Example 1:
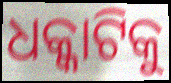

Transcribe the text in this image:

ଧକ୍କାଟିକୁ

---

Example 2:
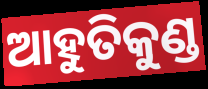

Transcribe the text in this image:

ଆହୁତିକୁଣ୍ଡ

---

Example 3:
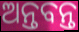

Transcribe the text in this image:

ଅନ୍ତବନ୍ତ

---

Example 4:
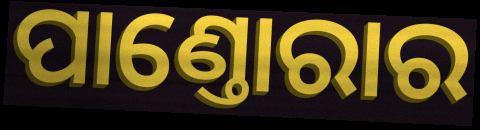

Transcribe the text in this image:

ପାଣ୍ତୋରାର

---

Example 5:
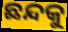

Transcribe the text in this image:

ଛନ୍ଦକୁ